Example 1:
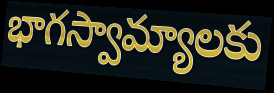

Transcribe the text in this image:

భాగస్వామ్యాలకు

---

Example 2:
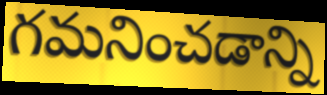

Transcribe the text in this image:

గమనించడాన్ని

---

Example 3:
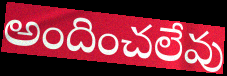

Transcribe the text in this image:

అందించలేవు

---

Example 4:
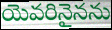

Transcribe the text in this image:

యెవరినైనను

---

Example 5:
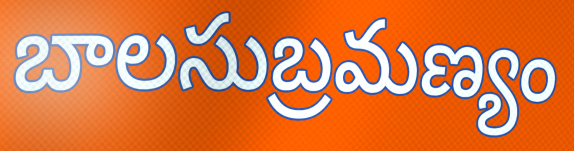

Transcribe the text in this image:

బాలసుబ్రమణ్యం